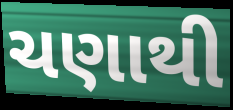
ચણાથી